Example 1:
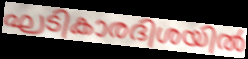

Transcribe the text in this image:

ഘടികാരദിശയിൽ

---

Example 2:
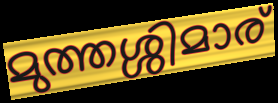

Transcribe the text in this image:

മുത്തശ്ശിമാര്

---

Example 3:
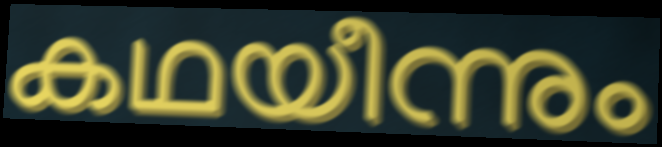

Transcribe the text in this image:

കഥയീന്നും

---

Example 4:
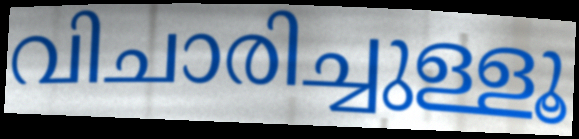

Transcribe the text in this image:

വിചാരിച്ചുള്ളൂ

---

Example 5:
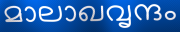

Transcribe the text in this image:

മാലാഖവൃന്ദം